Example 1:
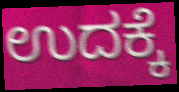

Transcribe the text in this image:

ಉದಕ್ಕೆ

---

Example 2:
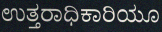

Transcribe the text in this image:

ಉತ್ತರಾಧಿಕಾರಿಯೂ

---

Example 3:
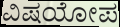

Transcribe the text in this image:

ವಿಷಯೋಪ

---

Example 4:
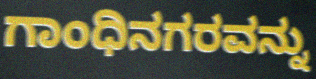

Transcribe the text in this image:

ಗಾಂಧಿನಗರವನ್ನು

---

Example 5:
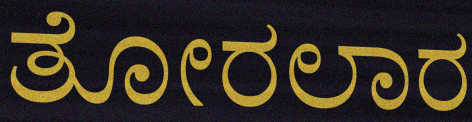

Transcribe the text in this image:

ತೋರಲಾರ